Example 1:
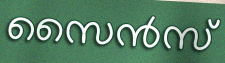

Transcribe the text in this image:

സൈൻസ്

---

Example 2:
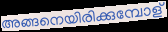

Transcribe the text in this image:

അങ്ങനെയിരിക്കുമ്പോള്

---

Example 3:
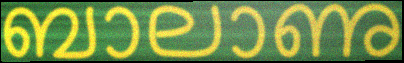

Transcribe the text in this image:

ബാലാണു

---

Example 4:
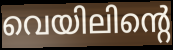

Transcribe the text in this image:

വെയിലിന്റെ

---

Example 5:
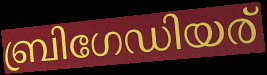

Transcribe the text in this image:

ബ്രിഗേഡിയര്